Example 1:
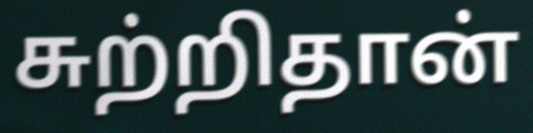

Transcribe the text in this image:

சுற்றிதான்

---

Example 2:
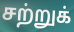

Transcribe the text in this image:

சற்றுக்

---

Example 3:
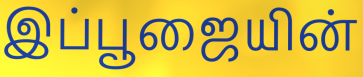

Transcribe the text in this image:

இப்பூஜையின்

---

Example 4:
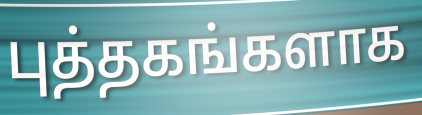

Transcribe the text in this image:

புத்தகங்களாக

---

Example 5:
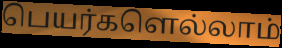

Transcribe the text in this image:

பெயர்களெல்லாம்